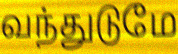
வந்துடுமே